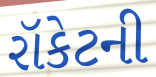
રૉકેટની